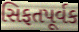
સિફતપૂર્વક